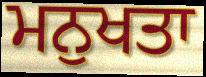
ਮਨੁਖਤਾ